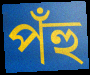
পঁহু